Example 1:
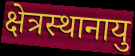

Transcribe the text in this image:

क्षेत्रस्थानायु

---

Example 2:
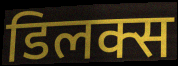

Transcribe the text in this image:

डिलक्स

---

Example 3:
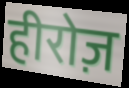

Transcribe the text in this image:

हीरोज़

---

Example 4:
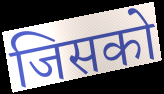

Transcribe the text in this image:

जिसको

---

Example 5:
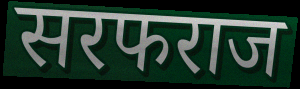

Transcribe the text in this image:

सरफराज